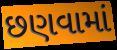
છણવામાં